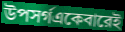
উপসর্গএকেবারেই